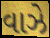
વાઝે